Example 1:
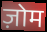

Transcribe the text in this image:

ज़ोम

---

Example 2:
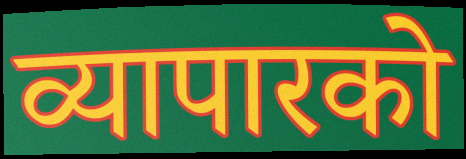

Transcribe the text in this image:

व्यापारको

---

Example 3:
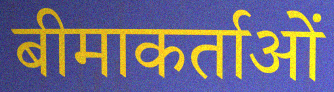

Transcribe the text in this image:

बीमाकर्ताओं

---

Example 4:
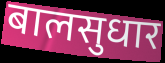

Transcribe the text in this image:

बालसुधार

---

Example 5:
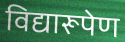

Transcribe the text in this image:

विद्यारूपेण